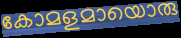
കോമളമായൊരു